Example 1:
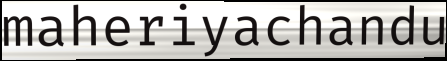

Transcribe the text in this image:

maheriyachandu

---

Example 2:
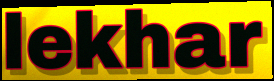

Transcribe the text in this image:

lekhar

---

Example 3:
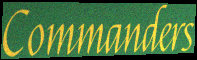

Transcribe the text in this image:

Commanders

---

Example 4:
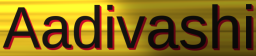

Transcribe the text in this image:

Aadivashi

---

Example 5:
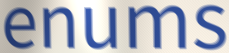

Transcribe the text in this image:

enums